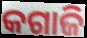
କଗାଜି